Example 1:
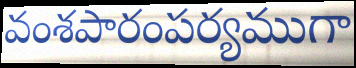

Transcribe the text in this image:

వంశపారంపర్యముగా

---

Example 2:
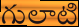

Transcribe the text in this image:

గులాటి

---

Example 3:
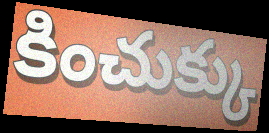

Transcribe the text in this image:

కించుక్కు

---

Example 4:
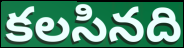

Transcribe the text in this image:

కలసినది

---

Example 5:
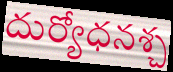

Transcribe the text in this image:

దుర్యోధనశ్చ